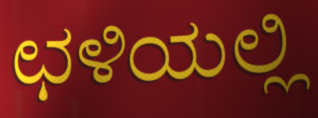
ಛಳಿಯಲ್ಲಿ